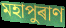
মহাপুৰাণ